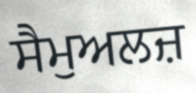
ਸੈਮੁਅਲਜ਼